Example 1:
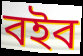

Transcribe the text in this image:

বইব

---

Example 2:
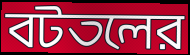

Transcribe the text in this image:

বটতলের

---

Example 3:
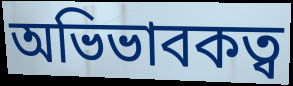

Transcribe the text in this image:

অভিভাবকত্ব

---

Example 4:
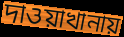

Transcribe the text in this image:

দাওয়াখানায়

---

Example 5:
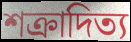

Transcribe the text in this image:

শক্রাদিত্য